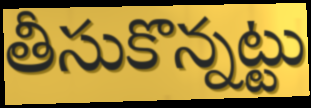
తీసుకొన్నట్టు